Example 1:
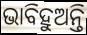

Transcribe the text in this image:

ଭାବିହୁଅନ୍ତି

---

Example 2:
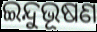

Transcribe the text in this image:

ଇନ୍ଦୁଭୂଷଣ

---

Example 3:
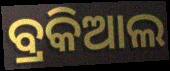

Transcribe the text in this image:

ବ୍ରକିଆଲ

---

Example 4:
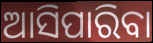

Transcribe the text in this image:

ଆସିପାରିବା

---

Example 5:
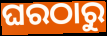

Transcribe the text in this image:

ଘରଠାରୁ